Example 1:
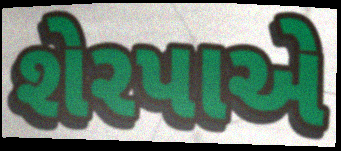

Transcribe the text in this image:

શેરપાએ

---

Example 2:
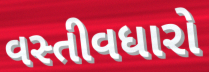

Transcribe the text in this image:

વસ્તીવધારો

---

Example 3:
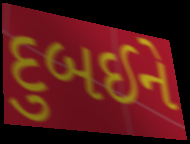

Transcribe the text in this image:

દુબઈને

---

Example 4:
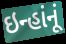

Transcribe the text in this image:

ઇન્હાંનૂં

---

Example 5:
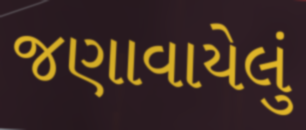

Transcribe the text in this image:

જણાવાયેલું